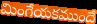
మింగేయకముందే